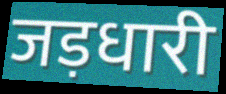
जड़धारी